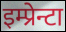
इम्प्रेन्टा